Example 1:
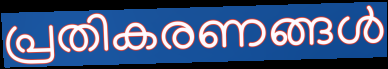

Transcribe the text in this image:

പ്രതികരണങ്ങൾ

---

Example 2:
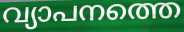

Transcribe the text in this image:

വ്യാപനത്തെ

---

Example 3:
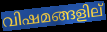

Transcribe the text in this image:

വിഷമങ്ങളില്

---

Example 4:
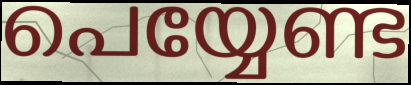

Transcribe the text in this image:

പെയ്യേണ്ട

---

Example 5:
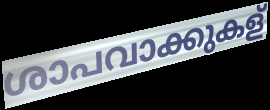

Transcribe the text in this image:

ശാപവാക്കുകള്